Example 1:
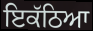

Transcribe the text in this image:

ਇਕੱਠਿਆ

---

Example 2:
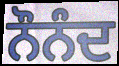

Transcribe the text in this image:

ਨੌਨੰਦ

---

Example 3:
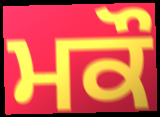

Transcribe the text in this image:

ਮਕੌ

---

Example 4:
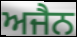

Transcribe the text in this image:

ਅਜੈਨ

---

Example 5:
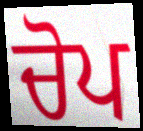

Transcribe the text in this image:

ਚੋਪ